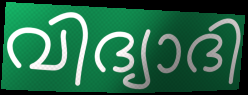
വിദ്യാദി